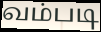
வம்படி